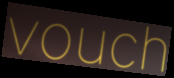
vouch